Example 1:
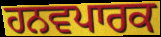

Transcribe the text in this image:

ਹਨਵਪਾਰਕ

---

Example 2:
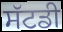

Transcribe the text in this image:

ਸੱਟਡੀ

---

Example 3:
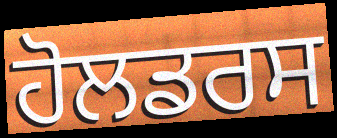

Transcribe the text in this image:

ਹੋਲਡਰਸ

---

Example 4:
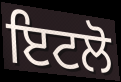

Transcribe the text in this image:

ਇਟਲੋ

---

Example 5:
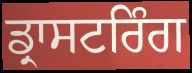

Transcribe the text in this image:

ਡ੍ਰਾਸਟਰਿੰਗ